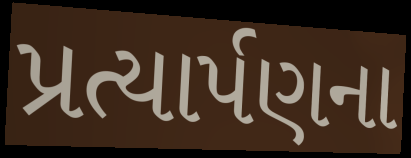
પ્રત્યાર્પણના